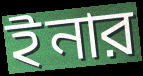
ইনার